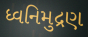
ધ્વનિમુદ્રણ